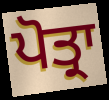
ਪੋਤ੍ਰਾ